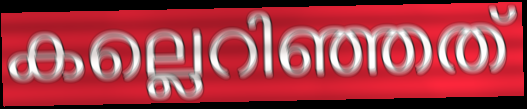
കല്ലെറിഞ്ഞത്